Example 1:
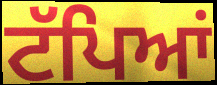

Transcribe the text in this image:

ਟੱਪਿਆਂ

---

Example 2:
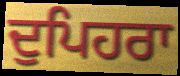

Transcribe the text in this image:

ਦੁਪਿਹਰਾ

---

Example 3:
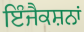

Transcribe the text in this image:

ਇੰਜੈਕਸ਼ਨਾਂ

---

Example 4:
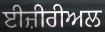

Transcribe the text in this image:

ਈਜ਼ੀਰੀਅਲ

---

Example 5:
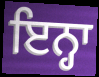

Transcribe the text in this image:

ਇਨ੍ਹਾ